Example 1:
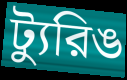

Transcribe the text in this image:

ট্যুরিঙ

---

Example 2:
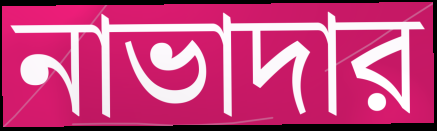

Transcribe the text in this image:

নাভাদার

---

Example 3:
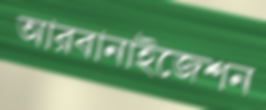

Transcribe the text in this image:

আরবানাইজেশন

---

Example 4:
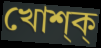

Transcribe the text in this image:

খোশ্ক্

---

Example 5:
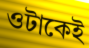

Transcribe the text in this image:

ওটাকেই